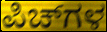
ಪಿಚ್‌ಗಳ